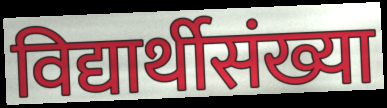
विद्यार्थीसंख्या